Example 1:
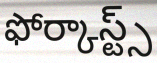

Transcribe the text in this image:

ఫోర్కాస్ట్స్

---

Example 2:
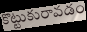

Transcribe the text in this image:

కొట్టుకురావడం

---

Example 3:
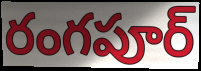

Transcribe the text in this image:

రంగపూర్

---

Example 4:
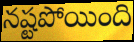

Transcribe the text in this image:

నష్టపోయింది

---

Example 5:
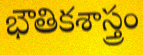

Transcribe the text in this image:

భౌతికశాస్త్రం